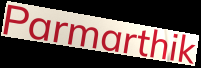
Parmarthik